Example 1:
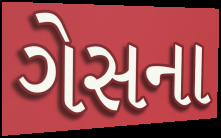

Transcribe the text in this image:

ગેસના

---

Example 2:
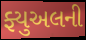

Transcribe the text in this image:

ફ્યુઅલની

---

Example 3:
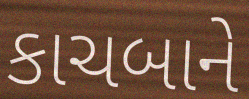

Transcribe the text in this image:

કાચબાને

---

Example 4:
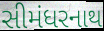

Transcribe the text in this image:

સીમંધરનાથ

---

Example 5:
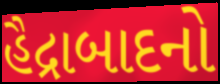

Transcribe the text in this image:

હૈદ્રાબાદનો